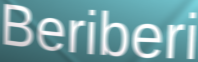
Beriberi